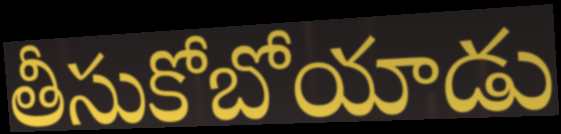
తీసుకోబోయాడు